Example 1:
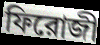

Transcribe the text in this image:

ফিরোজী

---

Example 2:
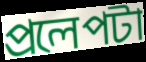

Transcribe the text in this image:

প্রলেপটা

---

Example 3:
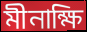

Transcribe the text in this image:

মীনাক্ষি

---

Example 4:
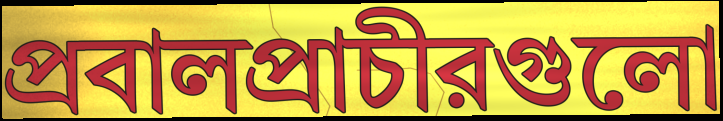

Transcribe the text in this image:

প্রবালপ্রাচীরগুলো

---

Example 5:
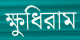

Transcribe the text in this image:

ক্ষুধিরাম